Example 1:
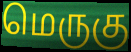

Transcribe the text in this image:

மெருகு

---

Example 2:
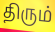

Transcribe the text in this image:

திரும்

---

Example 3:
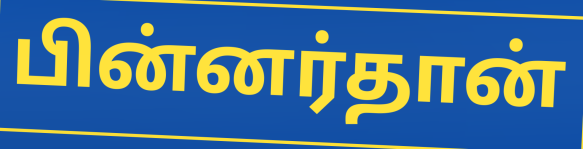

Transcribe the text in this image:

பின்னர்தான்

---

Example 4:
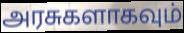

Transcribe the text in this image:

அரசுகளாகவும்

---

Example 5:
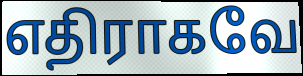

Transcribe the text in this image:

எதிராகவே